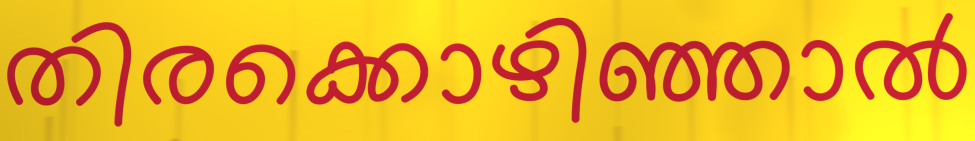
തിരക്കൊഴിഞ്ഞാൽ